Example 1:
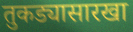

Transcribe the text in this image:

तुकड्यासारखा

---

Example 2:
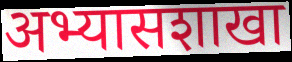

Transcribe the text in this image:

अभ्यासशाखा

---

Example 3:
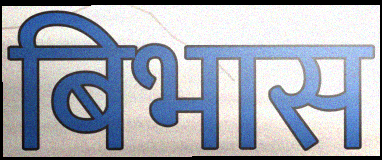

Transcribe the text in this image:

बिभास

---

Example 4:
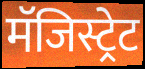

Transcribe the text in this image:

मॅजिस्ट्रेट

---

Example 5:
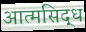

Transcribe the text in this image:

आत्मसिद्ध